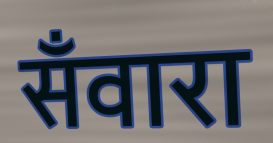
सँवारा